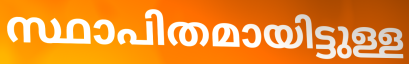
സ്ഥാപിതമായിട്ടുള്ള